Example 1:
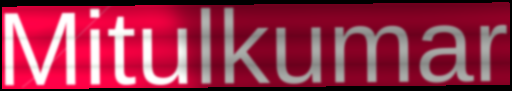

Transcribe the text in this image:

Mitulkumar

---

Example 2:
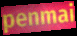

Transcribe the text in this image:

penmai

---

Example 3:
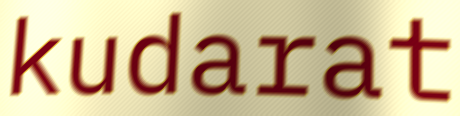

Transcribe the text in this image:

kudarat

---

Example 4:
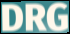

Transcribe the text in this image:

DRG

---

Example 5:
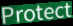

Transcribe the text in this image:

Protect